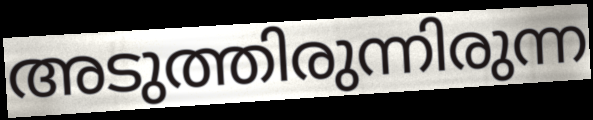
അടുത്തിരുന്നിരുന്ന